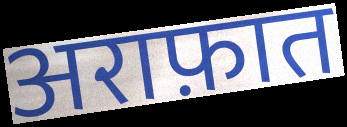
अराफ़ात